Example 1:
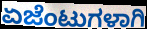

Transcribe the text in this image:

ಏಜೆಂಟುಗಳಾಗಿ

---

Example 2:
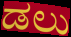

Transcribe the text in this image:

ಡಲು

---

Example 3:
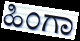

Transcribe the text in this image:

ಹಿಂಗಾ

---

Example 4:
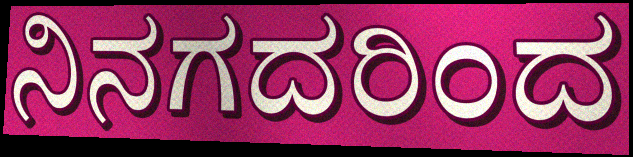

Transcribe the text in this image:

ನಿನಗದರಿಂದ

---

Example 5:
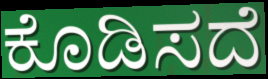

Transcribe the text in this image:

ಕೊಡಿಸದೆ